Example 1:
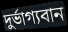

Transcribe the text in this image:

দুর্ভাগ্যবান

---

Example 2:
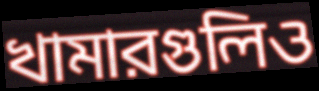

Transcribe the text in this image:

খামারগুলিও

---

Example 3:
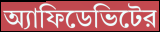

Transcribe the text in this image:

অ্যাফিডেভিটের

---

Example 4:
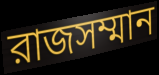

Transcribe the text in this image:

রাজসম্মান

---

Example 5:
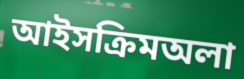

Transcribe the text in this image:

আইসক্রিমঅলা